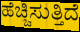
ಹೆಚ್ಚಿಸುತ್ತಿದೆ